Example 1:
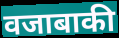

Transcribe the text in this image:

वजाबाकी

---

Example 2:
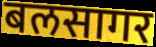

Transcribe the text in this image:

बलसागर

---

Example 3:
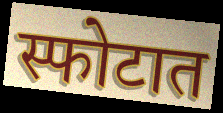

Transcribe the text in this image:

स्फोटात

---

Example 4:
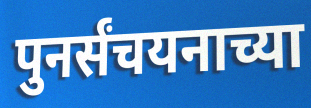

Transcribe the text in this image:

पुनर्संचयनाच्या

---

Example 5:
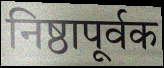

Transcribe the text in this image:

निष्ठापूर्वक